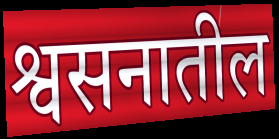
श्वसनातील